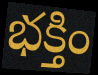
భక్తిం